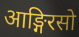
आङ्गिरसो